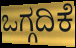
ಒಗ್ಗದಿಕೆ